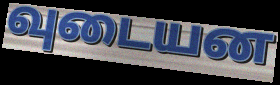
வுடையன